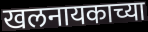
खलनायकाच्या